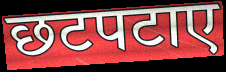
छटपटाए